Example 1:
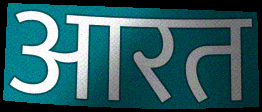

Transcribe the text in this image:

आरत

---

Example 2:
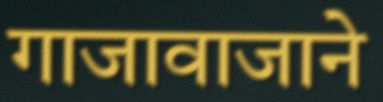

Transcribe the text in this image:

गाजावाजाने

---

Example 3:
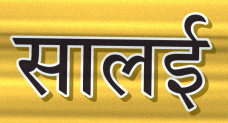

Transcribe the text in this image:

सालई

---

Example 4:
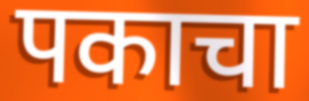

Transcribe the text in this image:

पकाचा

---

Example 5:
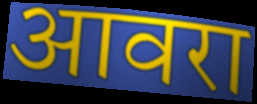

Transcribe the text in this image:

आवरा